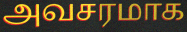
அவசரமாக